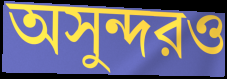
অসুন্দরও